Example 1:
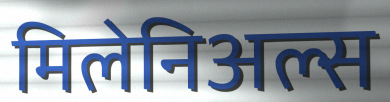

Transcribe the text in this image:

मिलेनिअल्स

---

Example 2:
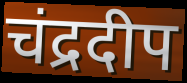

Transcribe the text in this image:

चंद्रदीप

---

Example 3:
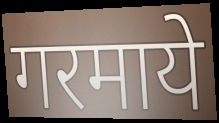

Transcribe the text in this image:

गरमाये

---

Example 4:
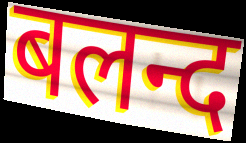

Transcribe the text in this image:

बलन्द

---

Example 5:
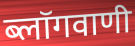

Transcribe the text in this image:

ब्लॉगवाणी